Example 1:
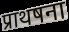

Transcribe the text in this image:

प्राथषना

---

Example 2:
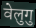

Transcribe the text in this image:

वेलुगु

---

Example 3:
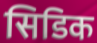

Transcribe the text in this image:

सिडिक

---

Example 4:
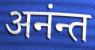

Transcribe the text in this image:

अनंन्त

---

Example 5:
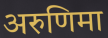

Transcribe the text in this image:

अरुणिमा